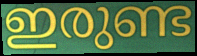
ഇരുണ്ട